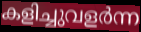
കളിച്ചുവളർന്ന